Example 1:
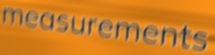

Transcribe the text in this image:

measurements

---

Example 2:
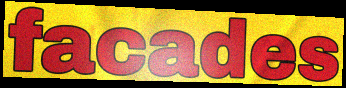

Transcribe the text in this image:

facades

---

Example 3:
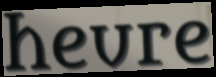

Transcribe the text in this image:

heure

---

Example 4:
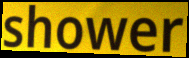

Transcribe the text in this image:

shower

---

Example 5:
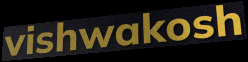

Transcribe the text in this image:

vishwakosh